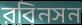
রবিনসন